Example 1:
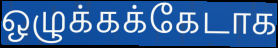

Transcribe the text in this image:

ஒழுக்கக்கேடாக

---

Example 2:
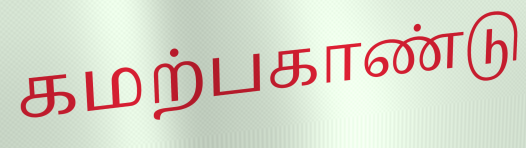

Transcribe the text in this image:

கமற்பகாண்டு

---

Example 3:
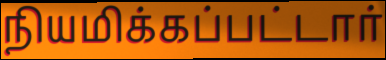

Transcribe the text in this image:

நியமிக்கப்பட்டார்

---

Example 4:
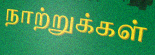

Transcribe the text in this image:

நாற்றுக்கள்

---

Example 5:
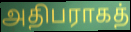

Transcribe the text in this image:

அதிபராகத்